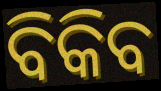
ବିକିବ